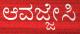
ಆವಜ್ಜೇಸಿ